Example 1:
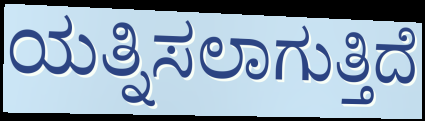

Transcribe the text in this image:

ಯತ್ನಿಸಲಾಗುತ್ತಿದೆ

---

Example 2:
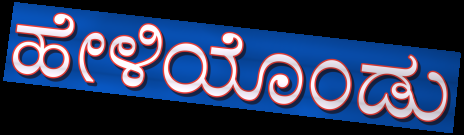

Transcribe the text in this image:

ಹೇಳಿಯೊಂಡು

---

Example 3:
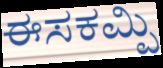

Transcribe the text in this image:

ಈಸಕಮ್ಪಿ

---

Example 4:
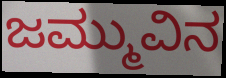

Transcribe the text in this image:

ಜಮ್ಮುವಿನ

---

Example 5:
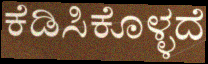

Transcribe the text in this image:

ಕೆಡಿಸಿಕೊಳ್ಳದೆ